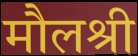
मौलश्री